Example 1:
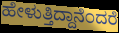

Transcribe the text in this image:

ಹೇಳುತ್ತಿದ್ದಾನೆಂದರೆ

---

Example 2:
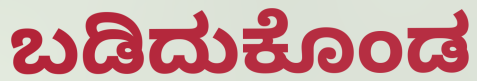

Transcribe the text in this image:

ಬಡಿದುಕೊಂಡ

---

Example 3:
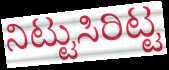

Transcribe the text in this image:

ನಿಟ್ಟುಸಿರಿಟ್ಟ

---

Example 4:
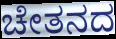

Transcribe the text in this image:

ಚೇತನದ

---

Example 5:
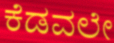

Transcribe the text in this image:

ಕೆಡವಲೇ